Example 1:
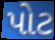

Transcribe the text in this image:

પોટ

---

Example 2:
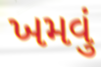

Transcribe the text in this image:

ખમવું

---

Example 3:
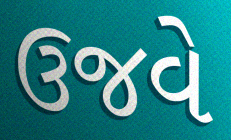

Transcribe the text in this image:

ઉજવે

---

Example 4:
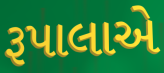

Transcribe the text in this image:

રૂપાલાએ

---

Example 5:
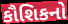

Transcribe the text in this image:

કૌશિકનો